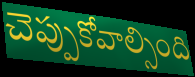
చెప్పుకోవాల్సింది